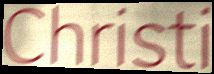
Christi